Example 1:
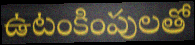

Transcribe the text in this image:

ఉటంకింపులతో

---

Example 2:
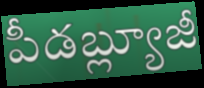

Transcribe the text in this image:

పీడబ్ల్యూజీ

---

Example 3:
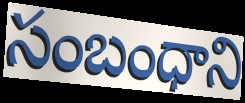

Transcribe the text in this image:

సంబంధాని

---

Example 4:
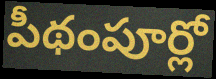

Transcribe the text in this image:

పీథంపూర్లో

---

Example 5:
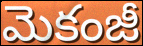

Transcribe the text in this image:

మెకంజీ